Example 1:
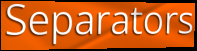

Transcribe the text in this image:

Separators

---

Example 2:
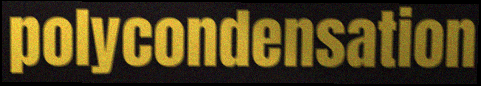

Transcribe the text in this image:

polycondensation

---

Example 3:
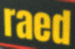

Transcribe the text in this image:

raed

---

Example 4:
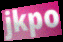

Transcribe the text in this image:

jkpo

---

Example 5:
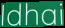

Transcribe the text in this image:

Idhai